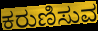
ಕರುಣಿಸುವ